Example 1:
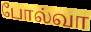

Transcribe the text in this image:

போல்வா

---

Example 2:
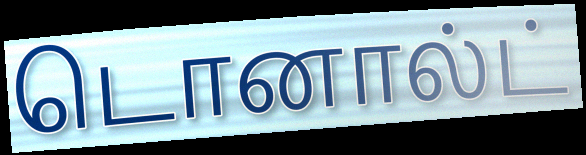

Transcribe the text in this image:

டொனால்ட்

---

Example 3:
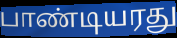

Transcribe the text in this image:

பாண்டியரது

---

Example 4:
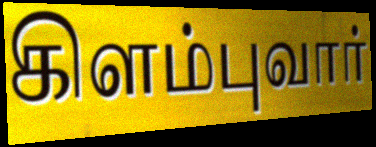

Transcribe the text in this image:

கிளம்புவார்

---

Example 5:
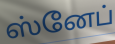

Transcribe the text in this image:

ஸ்னேப்